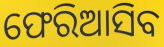
ଫେରିଆସିବ